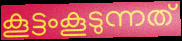
കൂട്ടംകൂടുന്നത്